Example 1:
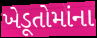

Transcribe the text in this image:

ખેડૂતોમાંના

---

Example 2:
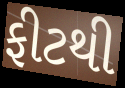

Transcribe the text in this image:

ફીટથી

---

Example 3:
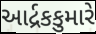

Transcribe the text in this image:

આર્દ્રકકુમારે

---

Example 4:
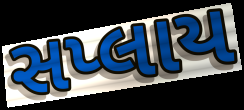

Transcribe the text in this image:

સપ્લાય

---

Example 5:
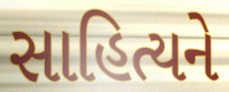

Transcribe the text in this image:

સાહિત્યને